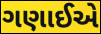
ગણાઈએ